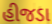
હીજડા